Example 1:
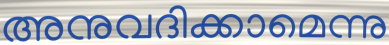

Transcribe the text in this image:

അനുവദിക്കാമെന്നു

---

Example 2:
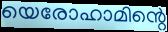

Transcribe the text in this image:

യെരോഹാമിന്റെ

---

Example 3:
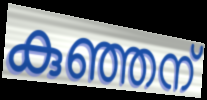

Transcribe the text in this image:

കുഞ്ഞന്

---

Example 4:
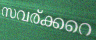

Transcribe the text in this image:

സവര്ക്കറെ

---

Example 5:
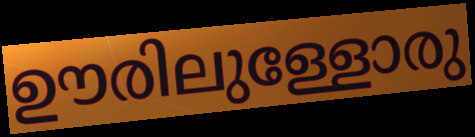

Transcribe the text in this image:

ഊരിലുള്ളോരു